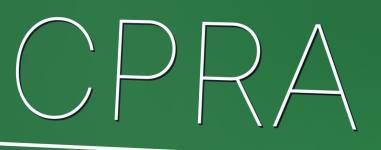
CPRA